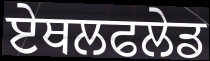
ਏਥਲਫਲੇਡ